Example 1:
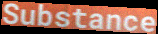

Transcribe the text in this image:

Substance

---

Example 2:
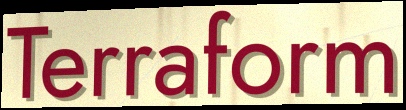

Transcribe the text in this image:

Terraform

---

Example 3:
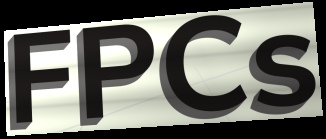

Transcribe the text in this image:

FPCs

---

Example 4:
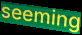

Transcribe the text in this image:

seeming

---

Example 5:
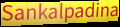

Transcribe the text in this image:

Sankalpadina